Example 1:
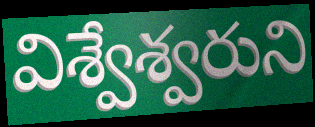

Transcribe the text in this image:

విశ్వేశ్వరుని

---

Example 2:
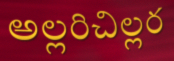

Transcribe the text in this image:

అల్లరిచిల్లర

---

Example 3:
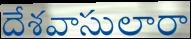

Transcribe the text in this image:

దేశవాసులారా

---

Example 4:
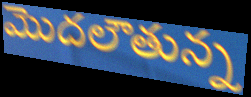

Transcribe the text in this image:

మొదలౌతున్న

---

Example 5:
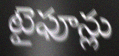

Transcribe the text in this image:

టైఫూన్లు